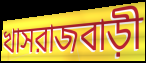
খাসরাজবাড়ী